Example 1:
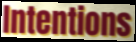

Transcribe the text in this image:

Intentions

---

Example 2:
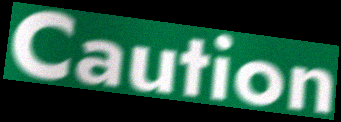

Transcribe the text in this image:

Caution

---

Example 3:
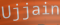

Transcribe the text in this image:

Ujjain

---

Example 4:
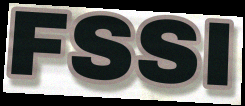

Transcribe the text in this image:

FSSI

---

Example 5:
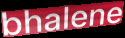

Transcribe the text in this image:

bhalene